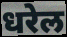
धरेल